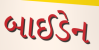
બાઈડેન